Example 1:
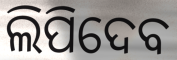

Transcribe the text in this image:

ଲିପିଦେବ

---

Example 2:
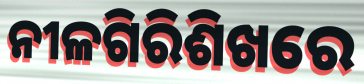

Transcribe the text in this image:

ନୀଳଗିରିଶିଖରେ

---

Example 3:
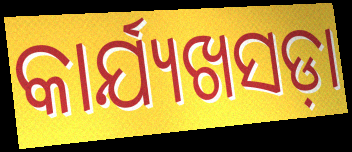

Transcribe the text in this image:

କାର୍ଯ୍ୟଖସଡ଼ା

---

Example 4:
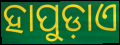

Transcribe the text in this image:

ହାପୁଡ଼ାଏ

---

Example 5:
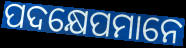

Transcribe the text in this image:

ପଦକ୍ଷେପମାନେ